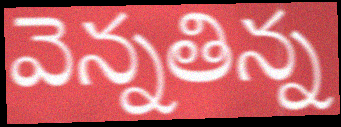
వెన్నతిన్న